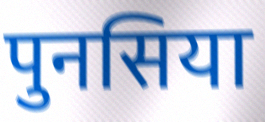
पुनसिया